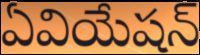
ఏవియేషన్